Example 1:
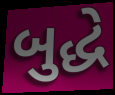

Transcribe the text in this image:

બુદ્ધે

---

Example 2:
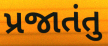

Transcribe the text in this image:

પ્રજાતંતુ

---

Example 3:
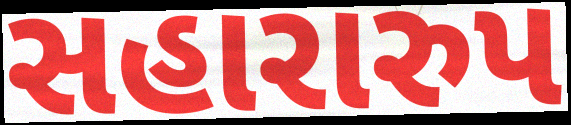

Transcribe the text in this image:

સહારારુપ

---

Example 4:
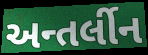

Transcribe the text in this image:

અન્તર્લીન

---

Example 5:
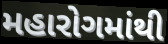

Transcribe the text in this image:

મહારોગમાંથી